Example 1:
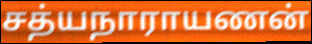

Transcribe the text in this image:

சத்யநாராயணன்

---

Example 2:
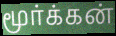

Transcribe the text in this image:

மூர்க்கன்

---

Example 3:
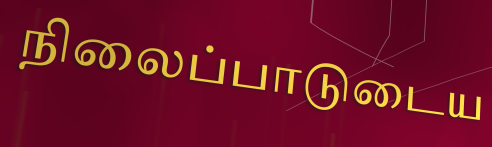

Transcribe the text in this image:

நிலைப்பாடுடைய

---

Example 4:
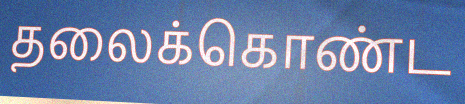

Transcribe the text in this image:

தலைக்கொண்ட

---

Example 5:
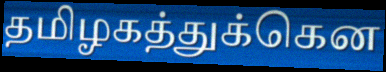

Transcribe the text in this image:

தமிழகத்துக்கென